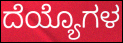
ದೆಯ್ಯೊಗಳ